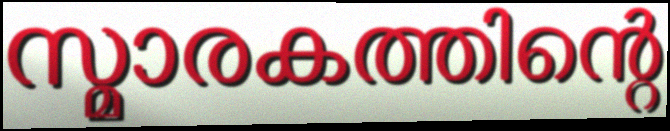
സ്മാരകത്തിന്റെ